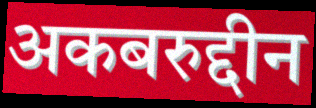
अकबरुद्दीन